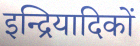
इन्द्रियादिकों